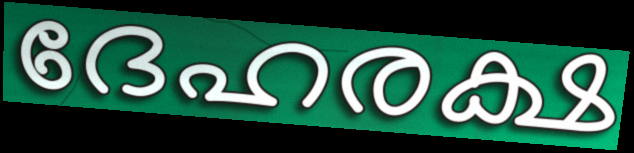
ദേഹരക്ഷ